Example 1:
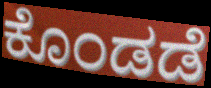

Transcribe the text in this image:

ಕೊಂಡಡೆ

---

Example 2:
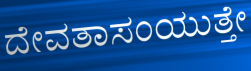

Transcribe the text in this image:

ದೇವತಾಸಂಯುತ್ತೇ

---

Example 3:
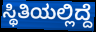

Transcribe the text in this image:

ಸ್ಥಿತಿಯಲ್ಲಿದ್ದೆ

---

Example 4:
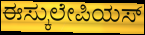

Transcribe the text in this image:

ಈಸ್ಕುಲೇಪಿಯಸ್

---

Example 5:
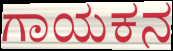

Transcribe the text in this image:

ಗಾಯಕನ